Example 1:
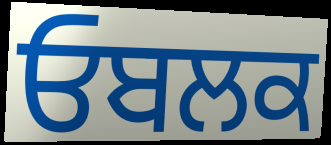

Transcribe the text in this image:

ਓਬਲਕ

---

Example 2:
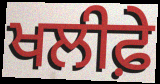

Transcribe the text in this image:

ਖਲੀਫ਼ੇ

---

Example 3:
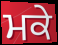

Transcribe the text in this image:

ਮਕੇ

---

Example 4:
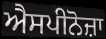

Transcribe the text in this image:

ਐਸਪੀਨੋਜ਼ਾ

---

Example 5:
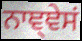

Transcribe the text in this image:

ਨਾਞ੍ਞੇਸਂ